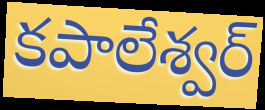
కపాలేశ్వర్